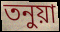
তনুয়া